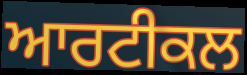
ਆਰਟੀਕਲ